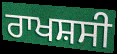
ਰਾਖਸ਼ਸੀ